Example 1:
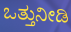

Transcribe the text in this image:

ಒತ್ತುನೀಡಿ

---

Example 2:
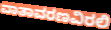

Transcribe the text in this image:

ವಾತಾವರಣವಿರಲಿ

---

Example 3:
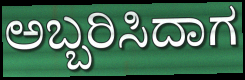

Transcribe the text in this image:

ಅಬ್ಬರಿಸಿದಾಗ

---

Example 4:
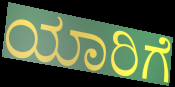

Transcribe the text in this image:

ಯಾರಿಗೆ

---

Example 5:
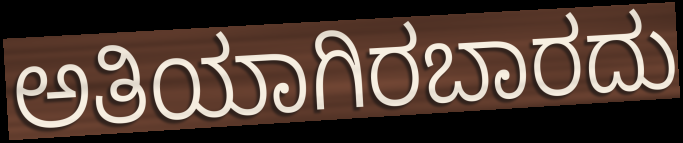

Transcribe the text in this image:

ಅತಿಯಾಗಿರಬಾರದು